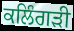
ਕਲਿੰਗੜੀ